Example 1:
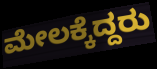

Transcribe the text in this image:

ಮೇಲಕ್ಕೆದ್ದರು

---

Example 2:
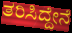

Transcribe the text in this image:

ತರಿಸಿದ್ದೇನೆ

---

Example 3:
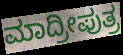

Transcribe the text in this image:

ಮಾದ್ರೀಪುತ್ರ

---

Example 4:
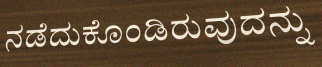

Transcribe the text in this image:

ನಡೆದುಕೊಂಡಿರುವುದನ್ನು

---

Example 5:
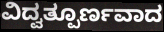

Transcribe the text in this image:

ವಿದ್ವತ್ಪೂರ್ಣವಾದ